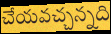
చేయవచ్చన్నది